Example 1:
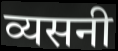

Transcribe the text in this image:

व्यसनी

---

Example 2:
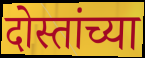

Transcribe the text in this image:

दोस्तांच्या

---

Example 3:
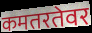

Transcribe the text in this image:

कमतरतेवर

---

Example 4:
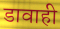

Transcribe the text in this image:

डावाही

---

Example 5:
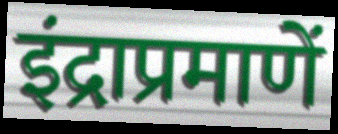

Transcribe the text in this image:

इंद्राप्रमाणें